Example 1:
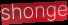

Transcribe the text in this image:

shonge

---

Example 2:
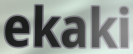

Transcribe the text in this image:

ekaki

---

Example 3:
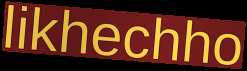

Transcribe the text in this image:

likhechho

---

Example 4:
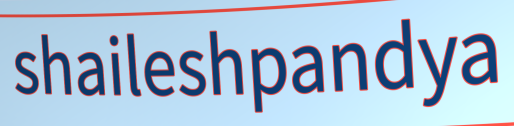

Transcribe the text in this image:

shaileshpandya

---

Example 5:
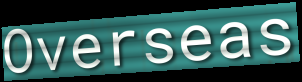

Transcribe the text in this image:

Overseas